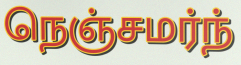
நெஞ்சமர்ந்